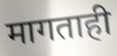
मागताही